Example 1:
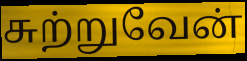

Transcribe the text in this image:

சுற்றுவேன்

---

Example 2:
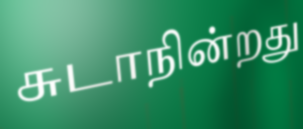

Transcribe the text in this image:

சுடாநின்றது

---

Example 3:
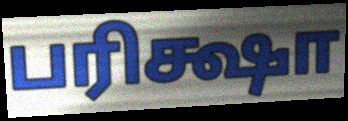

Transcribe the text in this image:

பரிக்ஷா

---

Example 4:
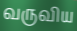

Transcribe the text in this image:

வருவிய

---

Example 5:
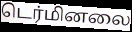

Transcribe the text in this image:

டெர்மினலை